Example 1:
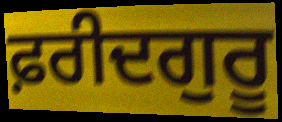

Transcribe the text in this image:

ਫ਼ਰੀਦਗੁਰੂ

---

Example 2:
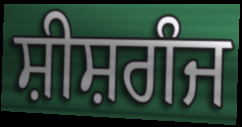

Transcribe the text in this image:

ਸ਼ੀਸ਼ਗੰਜ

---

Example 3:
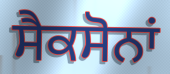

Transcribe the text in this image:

ਸੈਕਸੋਨਾਂ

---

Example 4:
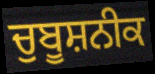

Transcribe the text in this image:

ਚੁਬੂਸ਼ਨੀਕ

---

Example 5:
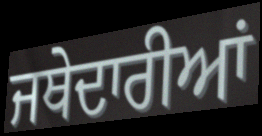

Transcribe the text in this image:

ਜਥੇਦਾਰੀਆਂ